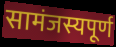
सामंजस्यपूर्ण